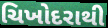
ચિખોદરાથી